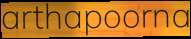
arthapoorna